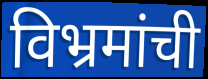
विभ्रमांची